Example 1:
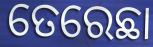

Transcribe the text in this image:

ତେରେଛା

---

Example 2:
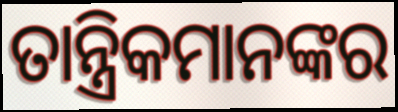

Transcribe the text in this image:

ତାନ୍ତ୍ରିକମାନଙ୍କର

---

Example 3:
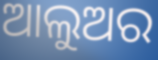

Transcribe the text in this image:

ଆଲୁଅର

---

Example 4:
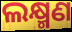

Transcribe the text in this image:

ଲକ୍ଷ୍ମଣ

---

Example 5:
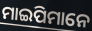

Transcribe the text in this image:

ମାଇପିମାନେ